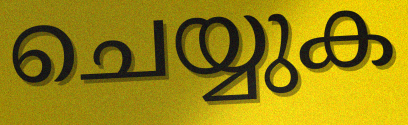
ചെയ്യുക